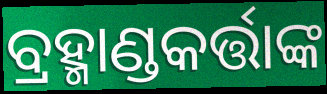
ବ୍ରହ୍ମାଣ୍ଡକର୍ତ୍ତାଙ୍କ